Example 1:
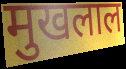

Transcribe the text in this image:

मुखलाल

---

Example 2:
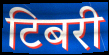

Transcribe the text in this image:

टिबरी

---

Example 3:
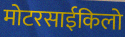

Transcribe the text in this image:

मोटरसाईकिलो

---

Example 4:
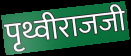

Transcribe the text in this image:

पृथ्वीराजजी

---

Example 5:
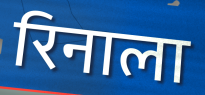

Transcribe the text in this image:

रिनाला